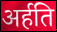
अर्हति